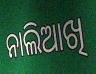
ନାଲିଆଖି